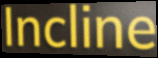
Incline